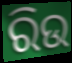
ରିଉ